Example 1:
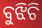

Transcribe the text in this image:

ବୁଝିଚି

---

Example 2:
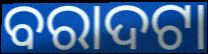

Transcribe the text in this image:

ବରାଦଟା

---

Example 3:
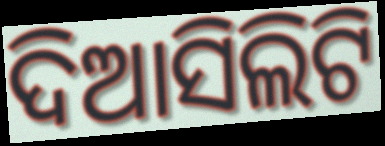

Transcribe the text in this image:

ଦିଆସିଲିଟି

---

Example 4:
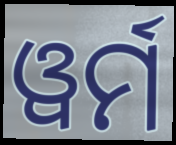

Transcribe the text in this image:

ୱର୍ମ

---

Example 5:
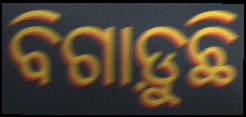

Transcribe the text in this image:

ବିଗାଡ଼ୁଛି